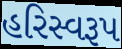
હરિસ્વરૂપ